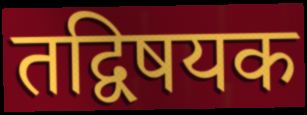
तद्विषयक